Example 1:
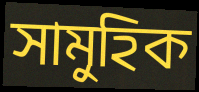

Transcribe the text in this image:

সামুহিক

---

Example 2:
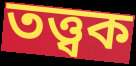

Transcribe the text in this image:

তত্ত্বক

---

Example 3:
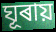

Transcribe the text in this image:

ঘূৰায়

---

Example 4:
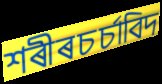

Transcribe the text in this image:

শৰীৰচৰ্চাবিদ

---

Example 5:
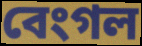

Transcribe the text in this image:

বেংগল